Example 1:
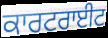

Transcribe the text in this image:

ਕਾਰਟਰਾਈਟ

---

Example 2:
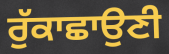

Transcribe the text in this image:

ਰੁੱਕਾਛਾਉਣੀ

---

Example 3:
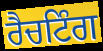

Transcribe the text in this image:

ਰੈਚਟਿੰਗ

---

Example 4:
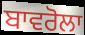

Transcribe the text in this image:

ਬਾਵਰੋਲਾ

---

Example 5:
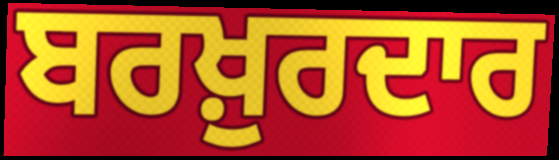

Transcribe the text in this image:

ਬਰਖ਼ੁਰਦਾਰ